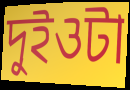
দুইওটা